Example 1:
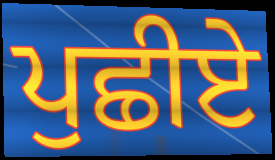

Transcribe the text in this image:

ਪੁਛੀਏ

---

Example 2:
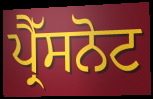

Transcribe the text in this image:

ਪ੍ਰੈੱਸਨੋਟ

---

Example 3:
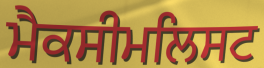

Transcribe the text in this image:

ਮੈਕਸੀਮਲਿਸਟ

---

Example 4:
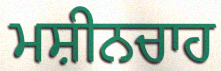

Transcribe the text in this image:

ਮਸ਼ੀਨਚਾਹ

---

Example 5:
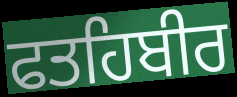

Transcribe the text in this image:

ਫਤਹਿਬੀਰ